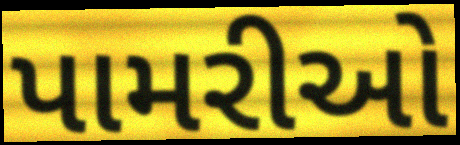
પામરીઓ